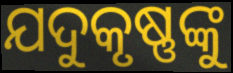
ଯଦୁକୃଷ୍ଣଙ୍କୁ